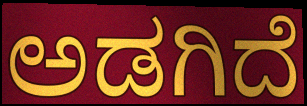
ಅಡಗಿದೆ